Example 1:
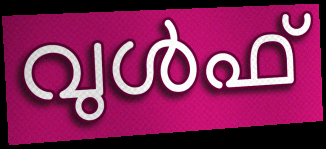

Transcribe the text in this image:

വുൾഫ്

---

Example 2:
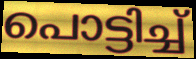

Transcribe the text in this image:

പൊട്ടിച്ച്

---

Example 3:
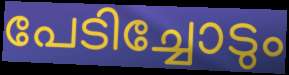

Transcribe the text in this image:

പേടിച്ചോടും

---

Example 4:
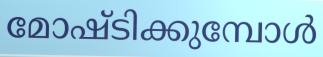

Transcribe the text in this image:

മോഷ്ടിക്കുമ്പോൾ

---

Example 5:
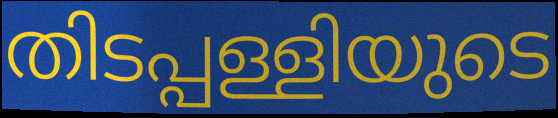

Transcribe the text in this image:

തിടപ്പള്ളിയുടെ